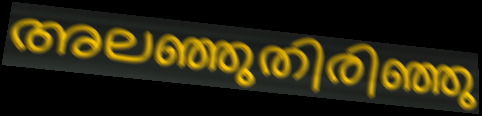
അലഞ്ഞുതിരിഞ്ഞു